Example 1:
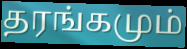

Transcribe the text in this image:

தரங்கமும்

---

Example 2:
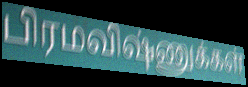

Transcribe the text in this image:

பிரமவிஷ்ணுக்கள்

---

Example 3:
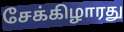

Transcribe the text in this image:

சேக்கிழாரது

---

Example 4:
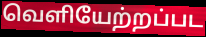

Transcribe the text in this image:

வெளியேற்றப்பட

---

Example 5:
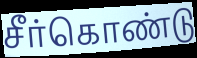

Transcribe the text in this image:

சீர்கொண்டு